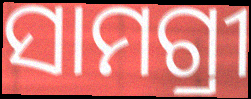
ସାମଗ୍ରୀ